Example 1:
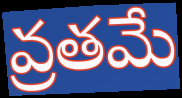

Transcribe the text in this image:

వ్రతమే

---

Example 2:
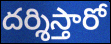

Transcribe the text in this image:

దర్శిస్తారో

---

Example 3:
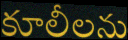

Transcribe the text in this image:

కూలీలను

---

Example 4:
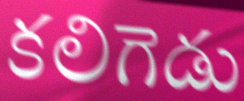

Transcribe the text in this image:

కలిగెడు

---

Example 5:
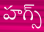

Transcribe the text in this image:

హగ్స్